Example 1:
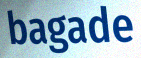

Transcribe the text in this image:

bagade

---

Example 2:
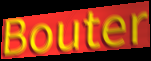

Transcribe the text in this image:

Bouter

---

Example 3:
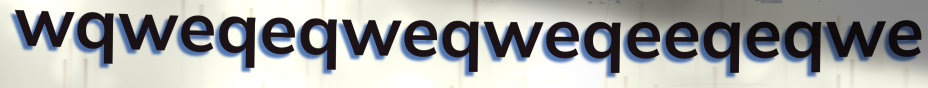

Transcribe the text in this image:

wqweqeqweqweqeeqeqwe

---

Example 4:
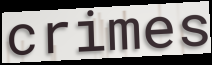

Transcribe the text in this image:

crimes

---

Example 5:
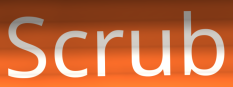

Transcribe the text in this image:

Scrub